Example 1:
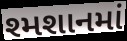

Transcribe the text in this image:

શ્મશાનમાં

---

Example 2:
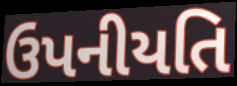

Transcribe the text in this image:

ઉપનીયતિ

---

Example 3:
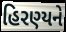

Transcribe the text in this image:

હિરણ્યને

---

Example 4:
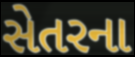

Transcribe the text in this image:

સેતરના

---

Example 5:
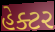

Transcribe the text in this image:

હેક્ટર